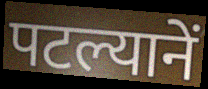
पटल्यानें